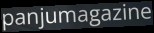
panjumagazine